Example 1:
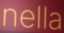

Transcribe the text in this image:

nella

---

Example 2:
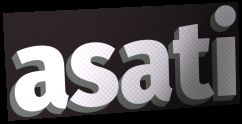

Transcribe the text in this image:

asati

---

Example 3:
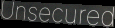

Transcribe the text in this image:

Unsecured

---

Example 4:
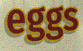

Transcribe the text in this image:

eggs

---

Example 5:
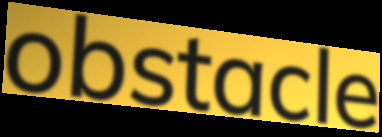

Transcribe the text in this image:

obstacle